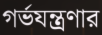
গর্ভযন্ত্রণার